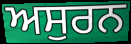
ਅਸੁਰਨ